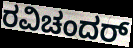
ರವಿಚಂದರ್